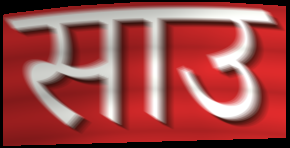
साउ